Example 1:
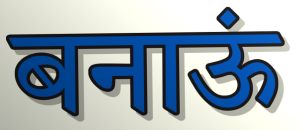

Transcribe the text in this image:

बनाऊं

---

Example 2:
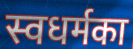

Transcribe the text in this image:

स्वधर्मका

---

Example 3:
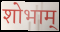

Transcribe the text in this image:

शोभाम्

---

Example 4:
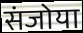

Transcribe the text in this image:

संजोया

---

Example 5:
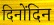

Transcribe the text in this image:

दिनोंदिन